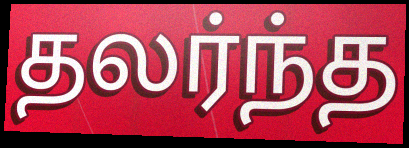
தலர்ந்த